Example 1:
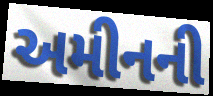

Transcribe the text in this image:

અમીનની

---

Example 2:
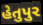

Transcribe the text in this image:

હેતુપુર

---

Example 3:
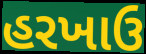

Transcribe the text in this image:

હરખાઉ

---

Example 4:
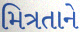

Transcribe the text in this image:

મિત્રતાને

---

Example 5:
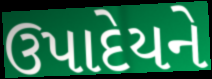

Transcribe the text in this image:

ઉપાદેયને